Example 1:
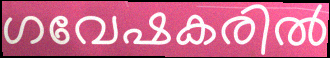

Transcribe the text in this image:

ഗവേഷകരിൽ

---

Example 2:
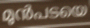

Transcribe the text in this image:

മുൻപടയെ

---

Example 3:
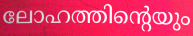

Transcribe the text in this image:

ലോഹത്തിന്റെയും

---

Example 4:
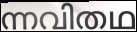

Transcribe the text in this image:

ന്നവിതഥ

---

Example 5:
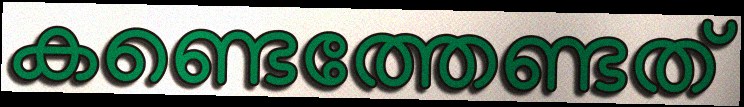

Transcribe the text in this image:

കണ്ടെത്തേണ്ടത്